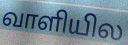
வாளியில